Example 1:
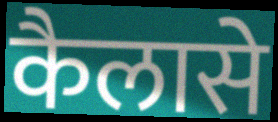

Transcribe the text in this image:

कैलासे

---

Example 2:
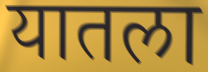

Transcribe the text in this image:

यातला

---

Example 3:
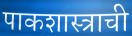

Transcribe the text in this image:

पाकशास्त्राची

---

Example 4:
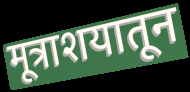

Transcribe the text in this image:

मूत्राशयातून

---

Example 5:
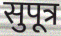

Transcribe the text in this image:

सुपूत्र